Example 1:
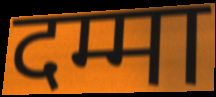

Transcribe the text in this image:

दम्मा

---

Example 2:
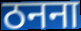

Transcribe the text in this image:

ठनना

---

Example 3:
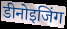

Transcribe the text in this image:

डीनोइजिंग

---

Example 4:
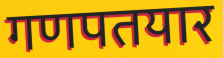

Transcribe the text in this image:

गणपतयार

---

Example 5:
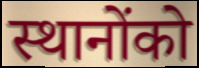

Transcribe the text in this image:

स्थानोंको